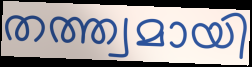
തത്ത്വമായി